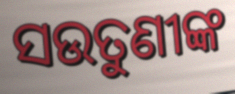
ସଉତୁଣୀଙ୍କ